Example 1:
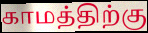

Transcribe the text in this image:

காமத்திற்கு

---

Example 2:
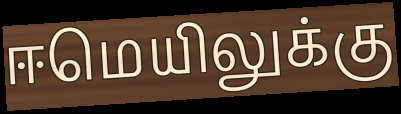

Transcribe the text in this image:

ஈமெயிலுக்கு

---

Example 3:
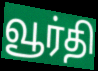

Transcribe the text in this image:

வூர்தி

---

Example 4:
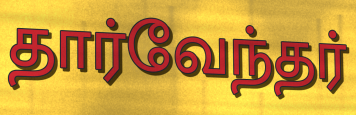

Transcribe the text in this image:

தார்வேந்தர்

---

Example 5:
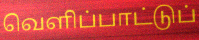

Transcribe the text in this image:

வெளிப்பாட்டுப்